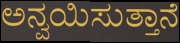
ಅನ್ವಯಿಸುತ್ತಾನೆ